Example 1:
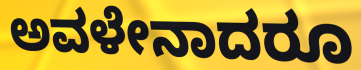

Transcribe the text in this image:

ಅವಳೇನಾದರೂ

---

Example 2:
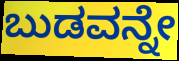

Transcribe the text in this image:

ಬುಡವನ್ನೇ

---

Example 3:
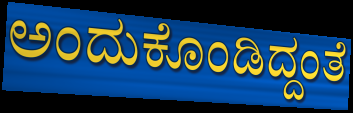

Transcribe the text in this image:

ಅಂದುಕೊಂಡಿದ್ದಂತೆ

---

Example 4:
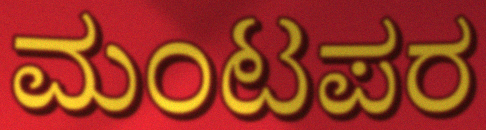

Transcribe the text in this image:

ಮಂಟಪರ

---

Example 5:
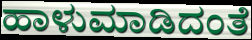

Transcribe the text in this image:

ಹಾಳುಮಾಡಿದಂತೆ